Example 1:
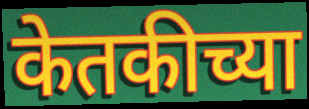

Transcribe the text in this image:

केतकीच्या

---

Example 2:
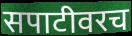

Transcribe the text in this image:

सपाटीवरच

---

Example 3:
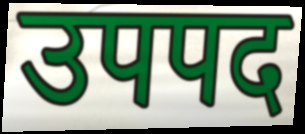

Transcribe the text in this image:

उपपद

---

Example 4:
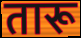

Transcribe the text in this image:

तारू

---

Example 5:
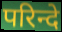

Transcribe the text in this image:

परिन्दे